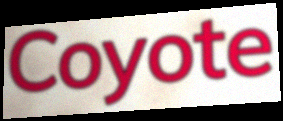
Coyote